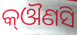
କ୍ଔଣସି